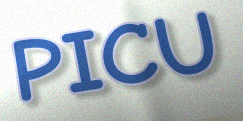
PICU